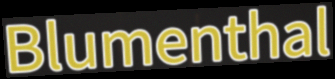
Blumenthal